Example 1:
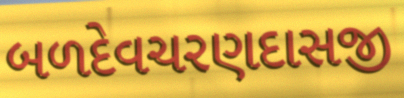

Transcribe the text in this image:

બળદેવચરણદાસજી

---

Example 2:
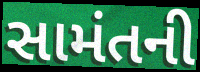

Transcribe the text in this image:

સામંતની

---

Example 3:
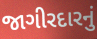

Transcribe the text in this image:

જાગીરદારનું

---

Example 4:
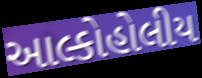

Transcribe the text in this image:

આલ્કોહોલીય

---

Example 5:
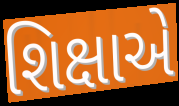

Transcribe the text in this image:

શિક્ષાએ